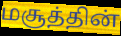
மசூத்தின்